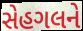
સેહગલને